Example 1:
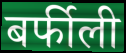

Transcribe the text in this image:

बर्फीली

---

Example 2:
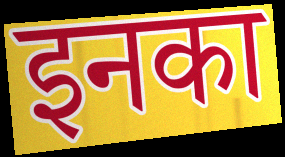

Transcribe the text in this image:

इनका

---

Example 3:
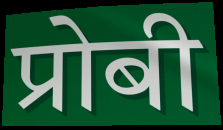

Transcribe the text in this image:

प्रोबी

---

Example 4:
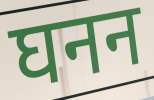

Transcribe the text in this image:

घनन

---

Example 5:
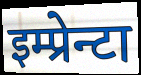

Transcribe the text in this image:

इम्प्रेन्टा